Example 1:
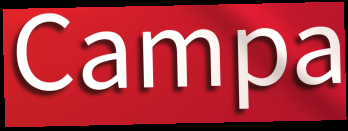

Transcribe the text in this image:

Campa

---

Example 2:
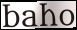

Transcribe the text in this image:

baho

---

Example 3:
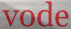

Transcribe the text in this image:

vode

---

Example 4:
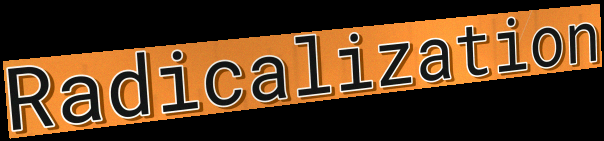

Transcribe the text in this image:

Radicalization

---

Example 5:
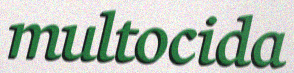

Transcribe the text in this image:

multocida